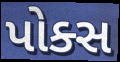
પોક્સ